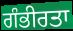
ਗੰਭੀਰਤਾ